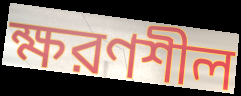
ক্ষরণশীল